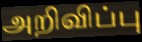
அறிவிப்பு